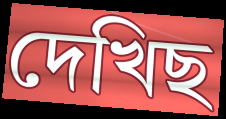
দেখিছ